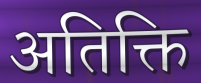
अतिक्ति